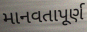
માનવતાપૂર્ણ